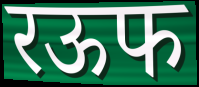
रऊफ